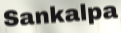
Sankalpa